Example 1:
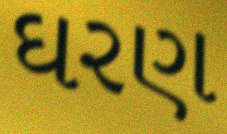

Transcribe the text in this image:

ઘરણ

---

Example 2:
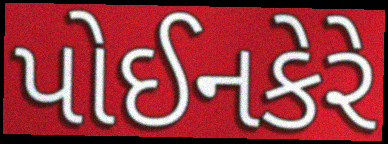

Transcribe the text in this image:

પોઈનકેરે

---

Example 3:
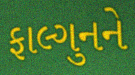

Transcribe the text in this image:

ફાલ્ગુનને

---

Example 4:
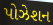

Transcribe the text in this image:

પોઝેશન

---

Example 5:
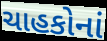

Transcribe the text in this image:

ચાહકોનાં